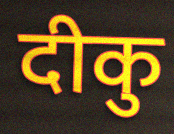
दीकु